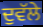
ਦੁਵੱਲੇ